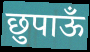
छुपाऊँ